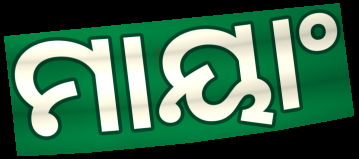
ମାୟାଂ